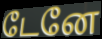
டேனே